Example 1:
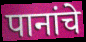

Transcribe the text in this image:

पानांचे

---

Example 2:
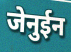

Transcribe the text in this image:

जेनुईन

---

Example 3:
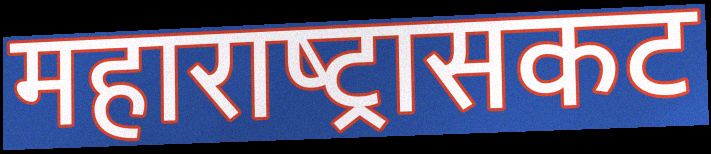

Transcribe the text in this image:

महाराष्ट्रासकट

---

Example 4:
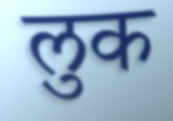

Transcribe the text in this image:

लुक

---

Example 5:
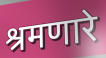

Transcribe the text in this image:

श्रमणारे